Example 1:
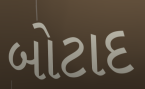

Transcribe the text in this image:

બોટાદ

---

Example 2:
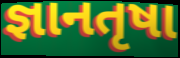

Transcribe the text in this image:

જ્ઞાનતૃષા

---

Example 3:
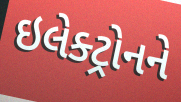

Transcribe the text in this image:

ઇલેક્ટ્રોનને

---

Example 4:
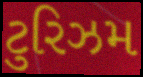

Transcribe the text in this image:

ટુરિઝમ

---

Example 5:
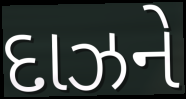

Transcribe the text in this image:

દાઝને